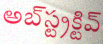
అబ్‌స్ట్రక్టివ్